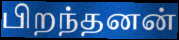
பிறந்தனன்